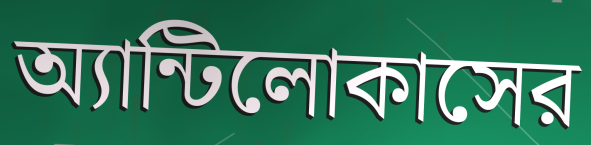
অ্যান্টিলোকাসের